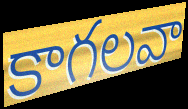
కాగలవా